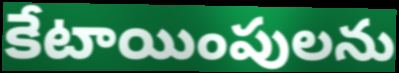
కేటాయింపులను